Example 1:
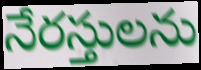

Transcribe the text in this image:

నేరస్తులను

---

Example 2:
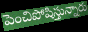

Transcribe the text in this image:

పెంచిపోషిస్తున్నారు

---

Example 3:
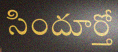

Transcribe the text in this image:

సిందూర్తో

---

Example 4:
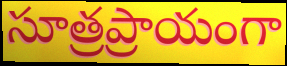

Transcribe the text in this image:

సూత్రప్రాయంగా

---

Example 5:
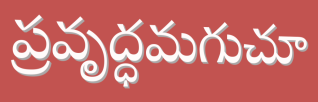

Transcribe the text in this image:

ప్రవృద్ధమగుచూ